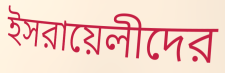
ইসরায়েলীদের